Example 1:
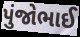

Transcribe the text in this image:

પુંજોભાઈ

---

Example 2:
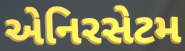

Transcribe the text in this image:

એનિરસેટમ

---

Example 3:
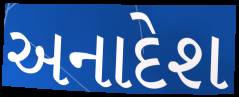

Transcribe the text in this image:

અનાદેશ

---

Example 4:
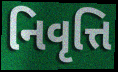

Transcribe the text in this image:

નિવૃત્તિ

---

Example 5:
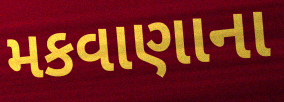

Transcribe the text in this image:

મકવાણાના